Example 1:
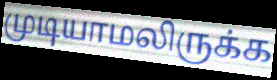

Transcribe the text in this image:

முடியாமலிருக்க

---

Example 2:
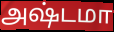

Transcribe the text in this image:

அஷ்டமா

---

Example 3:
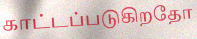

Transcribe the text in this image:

காட்டப்படுகிறதோ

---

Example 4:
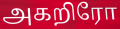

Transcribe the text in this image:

அகறிரோ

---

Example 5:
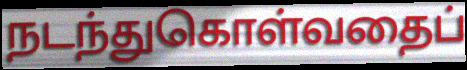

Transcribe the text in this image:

நடந்துகொள்வதைப்